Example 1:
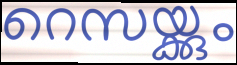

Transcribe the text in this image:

റെസയ്ക്കും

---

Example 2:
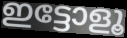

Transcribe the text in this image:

ഇട്ടോളൂ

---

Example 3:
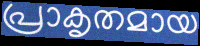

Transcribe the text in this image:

പ്രാകൃതമായ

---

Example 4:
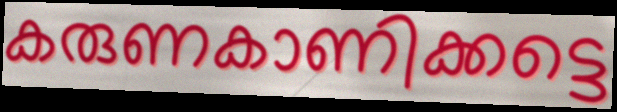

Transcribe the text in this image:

കരുണകാണിക്കട്ടെ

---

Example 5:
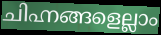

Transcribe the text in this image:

ചിഹ്നങ്ങളെല്ലാം